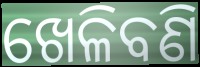
ଖେଳିବଣି